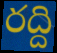
రద్ది